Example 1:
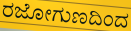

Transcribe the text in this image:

ರಜೋಗುಣದಿಂದ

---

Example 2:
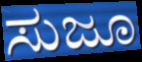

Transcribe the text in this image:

ಸುಜೂ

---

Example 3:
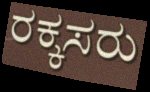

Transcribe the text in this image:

ರಕ್ಕಸರು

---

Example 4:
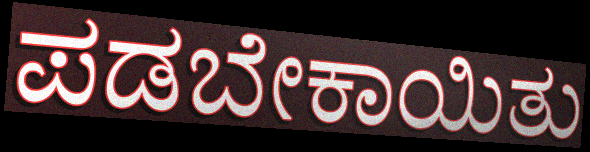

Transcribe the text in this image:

ಪಡಬೇಕಾಯಿತು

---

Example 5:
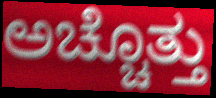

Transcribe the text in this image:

ಅಚ್ಚೊತ್ತು